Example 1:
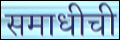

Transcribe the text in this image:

समाधीची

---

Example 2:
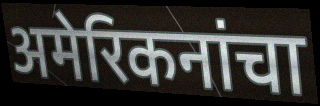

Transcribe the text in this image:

अमेरिकनांचा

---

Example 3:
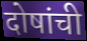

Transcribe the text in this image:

दोषांची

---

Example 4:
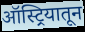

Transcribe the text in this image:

ऑस्ट्रियातून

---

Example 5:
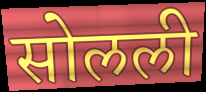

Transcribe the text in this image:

सोलली